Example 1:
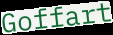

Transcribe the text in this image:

Goffart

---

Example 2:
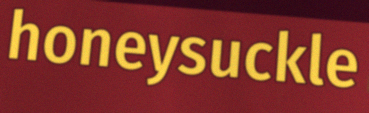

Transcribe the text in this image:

honeysuckle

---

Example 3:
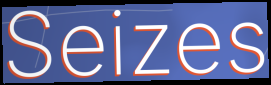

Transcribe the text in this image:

Seizes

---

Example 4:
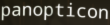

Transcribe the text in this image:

panopticon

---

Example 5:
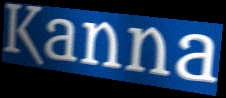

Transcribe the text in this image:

Kanna